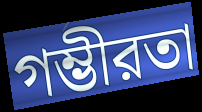
গম্ভীরতা